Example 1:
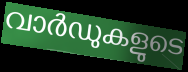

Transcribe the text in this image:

വാർഡുകളുടെ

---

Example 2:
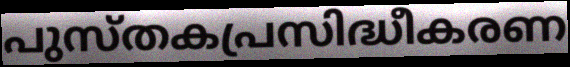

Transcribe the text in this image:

പുസ്തകപ്രസിദ്ധീകരണ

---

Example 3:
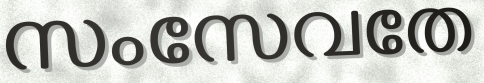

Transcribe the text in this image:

സംസേവതേ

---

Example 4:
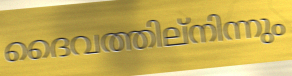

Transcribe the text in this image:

ദൈവത്തില്നിന്നും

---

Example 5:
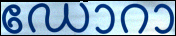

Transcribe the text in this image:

ഡോറാ